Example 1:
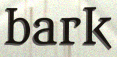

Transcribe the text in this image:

bark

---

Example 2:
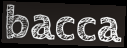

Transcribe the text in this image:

bacca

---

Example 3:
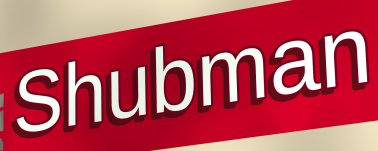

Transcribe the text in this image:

Shubman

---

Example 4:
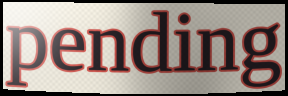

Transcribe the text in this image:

pending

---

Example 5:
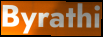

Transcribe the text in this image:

Byrathi